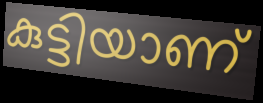
കുട്ടിയാണ്